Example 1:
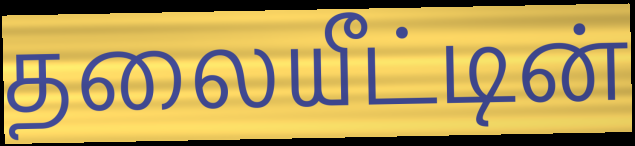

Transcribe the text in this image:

தலையீட்டின்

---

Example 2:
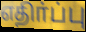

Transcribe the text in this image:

எதிர்ப்பு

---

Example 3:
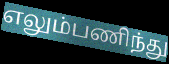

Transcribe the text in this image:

எலும்பணிந்து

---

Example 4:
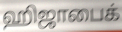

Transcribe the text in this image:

ஹிஜாபைக்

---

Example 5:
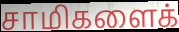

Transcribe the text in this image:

சாமிகளைக்